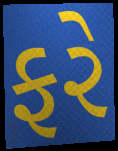
ફરે